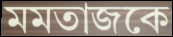
মমতাজকে